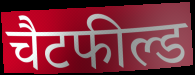
चैटफील्ड